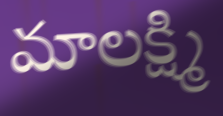
మాలక్ష్మి